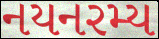
નયનરમ્ય